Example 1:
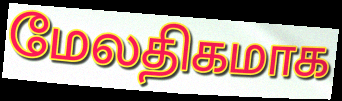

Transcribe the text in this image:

மேலதிகமாக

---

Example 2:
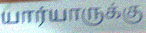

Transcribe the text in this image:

யார்யாருக்கு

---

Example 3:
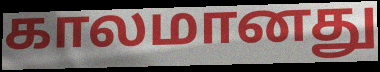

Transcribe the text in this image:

காலமானது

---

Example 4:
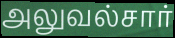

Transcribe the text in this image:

அலுவல்சார்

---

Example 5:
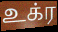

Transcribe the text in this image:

உக்ர